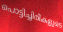
പൊട്ടിച്ചിരികളുടെ